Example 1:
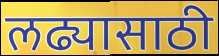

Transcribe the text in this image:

लढ्यासाठी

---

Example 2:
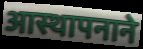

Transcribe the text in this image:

आस्थापनाने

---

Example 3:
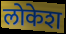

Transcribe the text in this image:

लोकेश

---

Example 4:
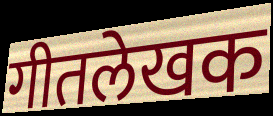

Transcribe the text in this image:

गीतलेखक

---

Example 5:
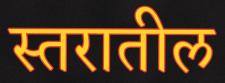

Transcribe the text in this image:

स्तरातील